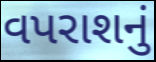
વપરાશનું